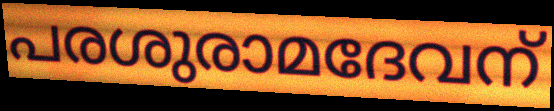
പരശുരാമദേവന്